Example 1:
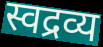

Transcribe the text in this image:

स्वद्रव्य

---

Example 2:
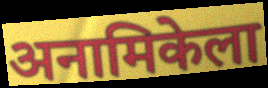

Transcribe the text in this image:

अनामिकेला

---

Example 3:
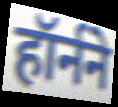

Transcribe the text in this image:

हॉर्नने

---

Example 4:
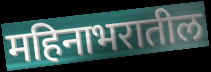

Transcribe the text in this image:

महिनाभरातील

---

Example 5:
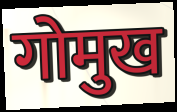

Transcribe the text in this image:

गोमुख